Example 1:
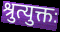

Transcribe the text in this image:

श्रुत्युक्तः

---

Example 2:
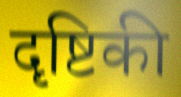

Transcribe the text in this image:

दृष्टिकी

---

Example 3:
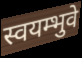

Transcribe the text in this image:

स्वयम्भुवे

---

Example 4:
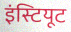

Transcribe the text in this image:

इंस्टियूट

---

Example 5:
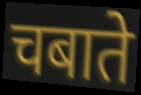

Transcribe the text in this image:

चबाते